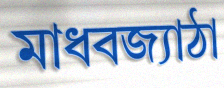
মাধবজ্যাঠা